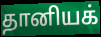
தானியக்